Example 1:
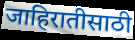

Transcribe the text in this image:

जाहिरातीसाठी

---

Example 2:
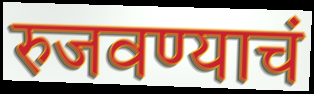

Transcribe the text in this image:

रुजवण्याचं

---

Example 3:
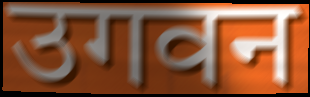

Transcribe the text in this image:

उगवन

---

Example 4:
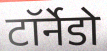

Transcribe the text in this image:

टॉर्नेडो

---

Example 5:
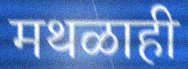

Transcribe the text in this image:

मथळाही